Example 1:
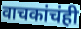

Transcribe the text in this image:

वाचकांचंही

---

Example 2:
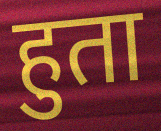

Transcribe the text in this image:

हुता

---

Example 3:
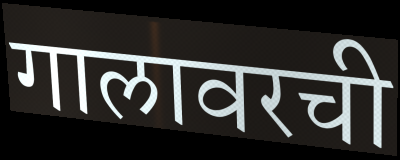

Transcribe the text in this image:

गालावरची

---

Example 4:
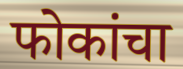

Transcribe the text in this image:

फोकांचा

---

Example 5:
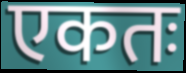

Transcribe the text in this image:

एकतः